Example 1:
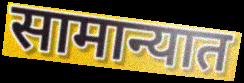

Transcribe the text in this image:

सामान्यात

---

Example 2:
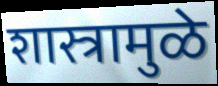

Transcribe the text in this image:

शास्त्रामुळे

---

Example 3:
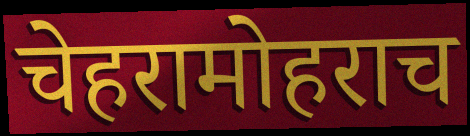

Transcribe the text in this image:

चेहरामोहराच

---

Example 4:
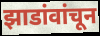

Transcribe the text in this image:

झाडांवांचून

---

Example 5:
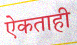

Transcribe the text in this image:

ऐकताही